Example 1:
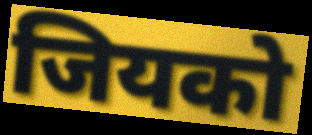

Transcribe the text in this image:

जियको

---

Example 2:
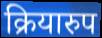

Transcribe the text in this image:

क्रियारुप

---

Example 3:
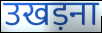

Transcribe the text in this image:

उखड़ना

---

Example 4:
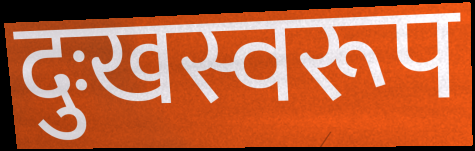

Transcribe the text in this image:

दुःखस्वरूप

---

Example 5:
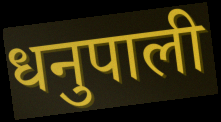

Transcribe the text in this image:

धनुपाली